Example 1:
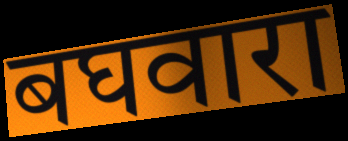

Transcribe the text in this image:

बघवारा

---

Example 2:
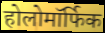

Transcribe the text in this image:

होलोमॉर्फिक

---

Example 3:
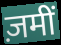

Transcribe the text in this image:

ज़मीं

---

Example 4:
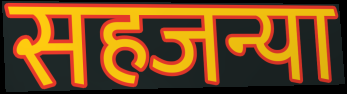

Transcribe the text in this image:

सहजन्या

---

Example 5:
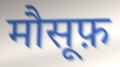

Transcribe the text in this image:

मौसूफ़